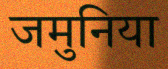
जमुनिया